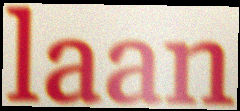
laan